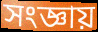
সংজ্ঞায়